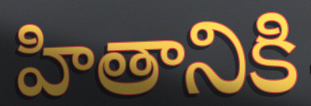
హితానికి